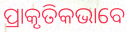
ପ୍ରାକୃତିକଭାବେ